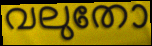
വലുതോ